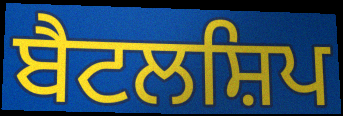
ਬੈਟਲਸ਼ਿਪ